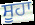
ਸੂਹਾ